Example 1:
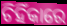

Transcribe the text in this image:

ଚିହିଁକାରେ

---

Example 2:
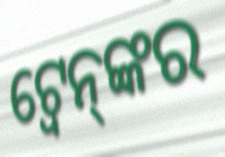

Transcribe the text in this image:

ଟ୍ୱେନ୍‌ଙ୍କର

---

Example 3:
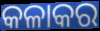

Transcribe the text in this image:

କଳାକର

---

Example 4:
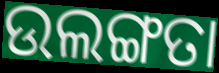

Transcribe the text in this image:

ଉଲଙ୍ଗତା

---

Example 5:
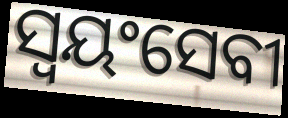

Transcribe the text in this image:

ସ୍ୱୟଂସେବୀ